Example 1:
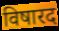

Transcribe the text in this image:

विषारद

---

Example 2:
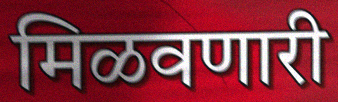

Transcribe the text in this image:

मिळवणारी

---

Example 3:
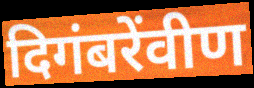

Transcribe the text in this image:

दिगंबरेंवीण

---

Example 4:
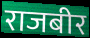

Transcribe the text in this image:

राजबीर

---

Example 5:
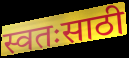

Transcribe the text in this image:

स्वतःसाठी